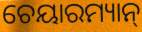
ଚେୟାରମ୍ୟାନ୍